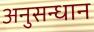
अनुसन्धान